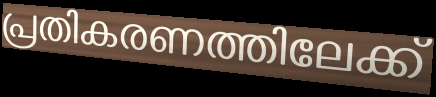
പ്രതികരണത്തിലേക്ക്